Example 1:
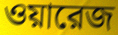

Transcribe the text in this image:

ওয়ারেজ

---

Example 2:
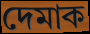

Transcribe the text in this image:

দেমাক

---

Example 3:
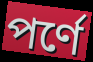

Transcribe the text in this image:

পর্ণে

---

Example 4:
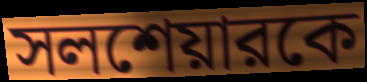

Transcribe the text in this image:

সলশেয়ারকে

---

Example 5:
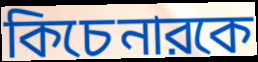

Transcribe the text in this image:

কিচেনারকে